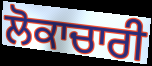
ਲੋਕਾਚਾਰੀ